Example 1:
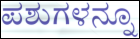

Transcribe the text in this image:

ಪಶುಗಳನ್ನೂ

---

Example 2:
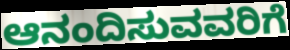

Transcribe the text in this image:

ಆನಂದಿಸುವವರಿಗೆ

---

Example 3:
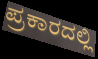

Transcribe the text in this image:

ಪ್ರಕಾರದಲ್ಲಿ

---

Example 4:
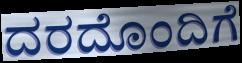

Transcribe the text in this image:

ದರದೊಂದಿಗೆ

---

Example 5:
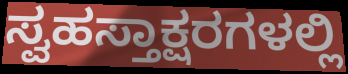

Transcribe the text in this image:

ಸ್ವಹಸ್ತಾಕ್ಷರಗಳಲ್ಲಿ